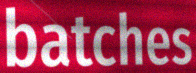
batches